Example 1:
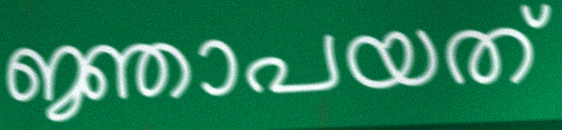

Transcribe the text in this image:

ജ്ഞാപയത്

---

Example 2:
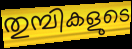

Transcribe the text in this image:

തുമ്പികളുടെ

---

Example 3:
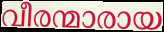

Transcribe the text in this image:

വീരന്മാരായ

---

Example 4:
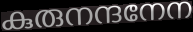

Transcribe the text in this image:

കുരുനന്ദനേന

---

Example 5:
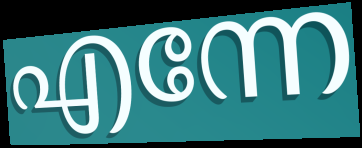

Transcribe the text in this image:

എന്നേ